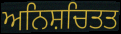
ਅਨਿਸ਼ਚਿਤਤ